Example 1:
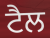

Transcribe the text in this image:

ਟੈਲ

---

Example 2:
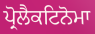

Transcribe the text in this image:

ਪ੍ਰੋਲੈਕਟਿਨੋਮਾ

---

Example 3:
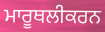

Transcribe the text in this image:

ਮਾਰੂਥਲੀਕਰਨ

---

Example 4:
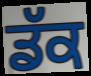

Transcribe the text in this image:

ਡੱਕ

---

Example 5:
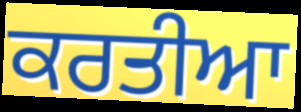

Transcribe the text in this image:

ਕਰਤੀਆ